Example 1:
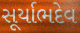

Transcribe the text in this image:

સૂર્યાભદેવ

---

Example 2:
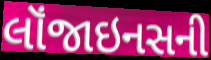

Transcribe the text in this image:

લૉંજાઇનસની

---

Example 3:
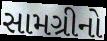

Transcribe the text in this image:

સામગ્રીનો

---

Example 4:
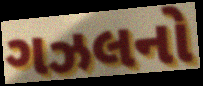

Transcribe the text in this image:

ગઝલનો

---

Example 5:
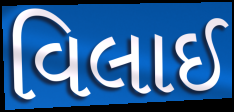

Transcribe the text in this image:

વિલાઈ